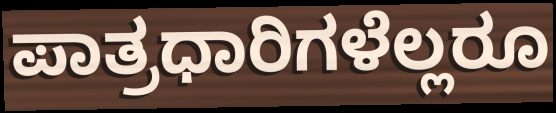
ಪಾತ್ರಧಾರಿಗಳೆಲ್ಲರೂ